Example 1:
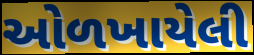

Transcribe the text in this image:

ઓળખાયેલી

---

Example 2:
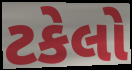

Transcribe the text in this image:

ટકેલો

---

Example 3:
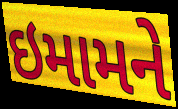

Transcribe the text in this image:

ઇમામને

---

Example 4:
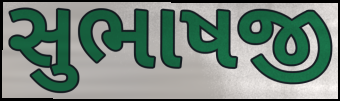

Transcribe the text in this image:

સુભાષજી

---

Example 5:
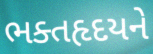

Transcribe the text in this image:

ભક્તહૃદયને